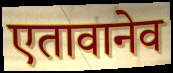
एतावानेव